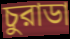
চুরাডা